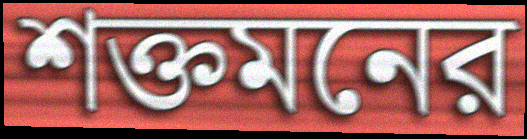
শক্তমনের